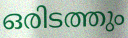
ഒരിടത്തും